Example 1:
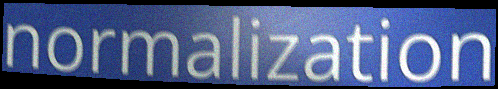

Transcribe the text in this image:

normalization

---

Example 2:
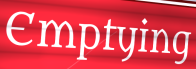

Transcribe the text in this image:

Emptying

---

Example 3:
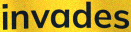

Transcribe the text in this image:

invades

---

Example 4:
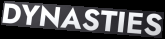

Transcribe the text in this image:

DYNASTIES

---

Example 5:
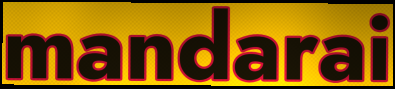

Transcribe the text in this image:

mandarai